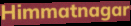
Himmatnagar